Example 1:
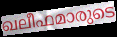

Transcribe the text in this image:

ഖലീഫമാരുടെ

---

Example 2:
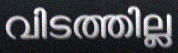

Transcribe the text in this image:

വിടത്തില്ല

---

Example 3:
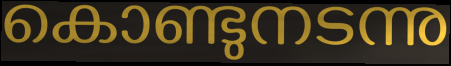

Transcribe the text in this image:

കൊണ്ടുനടന്നു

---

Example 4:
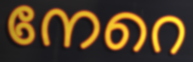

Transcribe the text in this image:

നേറെ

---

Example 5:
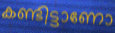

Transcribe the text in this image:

കണ്ടിട്ടാണോ